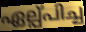
ഏല്പ്പിച്ച